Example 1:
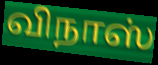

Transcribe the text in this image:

விநாஸ்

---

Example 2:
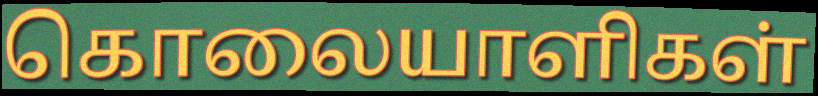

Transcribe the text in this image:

கொலையாளிகள்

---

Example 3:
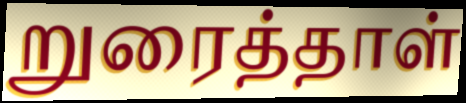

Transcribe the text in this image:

றுரைத்தாள்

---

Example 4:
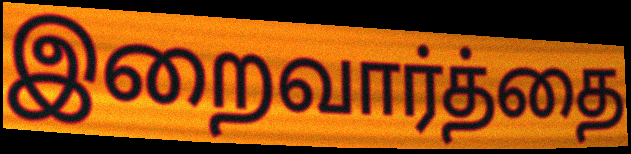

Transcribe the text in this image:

இறைவார்த்தை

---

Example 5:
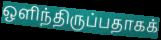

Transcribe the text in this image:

ஒளிந்திருப்பதாகக்